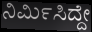
ನಿರ್ಮಿಸಿದ್ದೇ